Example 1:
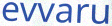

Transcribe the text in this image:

evvaru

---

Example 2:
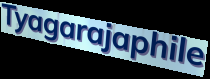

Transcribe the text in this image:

Tyagarajaphile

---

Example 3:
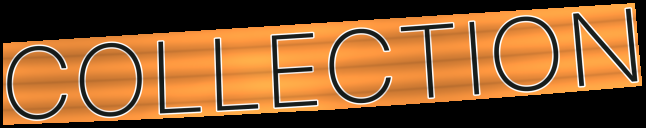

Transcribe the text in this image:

COLLECTION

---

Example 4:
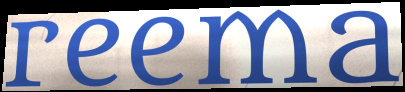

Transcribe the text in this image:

reema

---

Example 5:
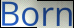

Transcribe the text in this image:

Born